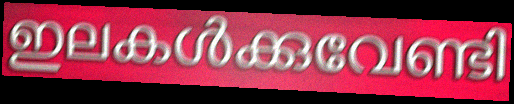
ഇലകൾക്കുവേണ്ടി